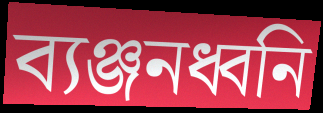
ব্যঞ্জনধ্বনি